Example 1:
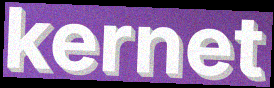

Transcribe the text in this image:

kernet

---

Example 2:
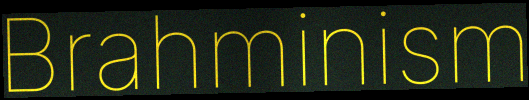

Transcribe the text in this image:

Brahminism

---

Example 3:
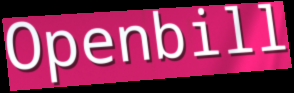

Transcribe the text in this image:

Openbill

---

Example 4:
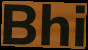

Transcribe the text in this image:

Bhi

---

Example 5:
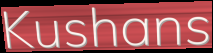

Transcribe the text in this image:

Kushans